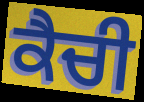
ਕੈਚੀ